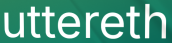
uttereth